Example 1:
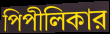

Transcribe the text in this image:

পিপীলিকার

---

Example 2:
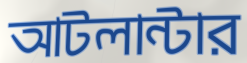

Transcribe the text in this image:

আটলান্টার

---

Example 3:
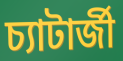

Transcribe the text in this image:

চ্যাটার্জী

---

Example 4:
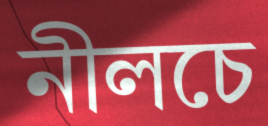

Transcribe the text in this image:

নীলচে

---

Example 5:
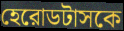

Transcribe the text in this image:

হেরোডটাসকে